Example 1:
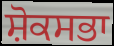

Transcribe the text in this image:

ਸ਼ੋਕਸਭਾ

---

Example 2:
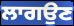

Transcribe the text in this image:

ਲਾਗਉਣ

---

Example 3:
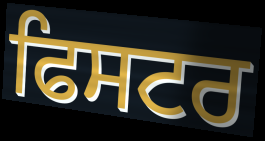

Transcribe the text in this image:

ਫਿਸਟਰ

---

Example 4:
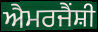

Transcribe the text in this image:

ਐਮਰਜੈਂਸ਼ੀ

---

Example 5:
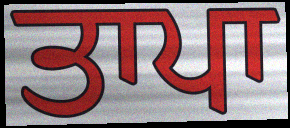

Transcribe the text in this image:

ਤਾਪਾ